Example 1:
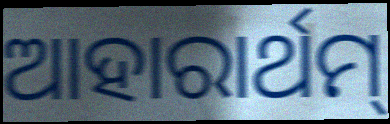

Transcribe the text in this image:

ଆହାରାର୍ଥମ୍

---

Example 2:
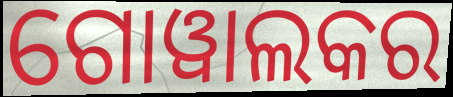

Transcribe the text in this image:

ଗୋୱାଲକର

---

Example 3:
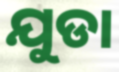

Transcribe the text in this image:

ଯୁଡା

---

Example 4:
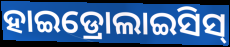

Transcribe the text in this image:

ହାଇଡ୍ରୋଲାଇସିସ୍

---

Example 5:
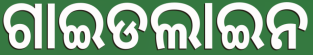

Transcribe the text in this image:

ଗାଇଡଲାଇନ